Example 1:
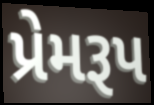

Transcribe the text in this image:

પ્રેમરૂપ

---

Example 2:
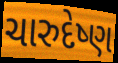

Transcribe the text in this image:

ચારુદેષ્ણ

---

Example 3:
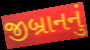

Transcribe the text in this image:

જીબ્રાનનું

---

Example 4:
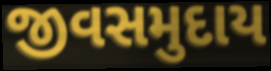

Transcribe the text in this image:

જીવસમુદાય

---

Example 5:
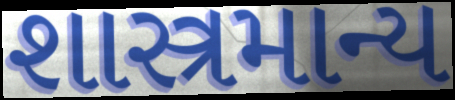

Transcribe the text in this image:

શાસ્ત્રમાન્ય